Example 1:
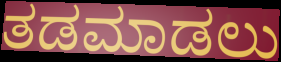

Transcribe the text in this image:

ತಡಮಾಡಲು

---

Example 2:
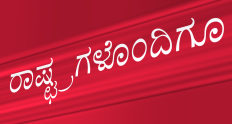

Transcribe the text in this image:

ರಾಷ್ಟ್ರಗಳೊಂದಿಗೂ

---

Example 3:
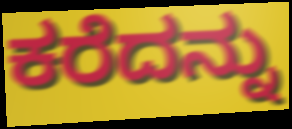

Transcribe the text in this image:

ಕರೆದನ್ನು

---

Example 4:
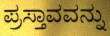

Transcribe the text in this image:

ಪ್ರಸ್ತಾವವನ್ನು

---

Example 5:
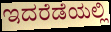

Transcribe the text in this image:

ಇದರೆಡೆಯಲ್ಲಿ